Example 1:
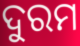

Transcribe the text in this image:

ଦୁରମ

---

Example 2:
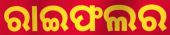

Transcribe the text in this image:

ରାଇଫଲର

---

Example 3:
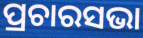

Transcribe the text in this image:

ପ୍ରଚାରସଭା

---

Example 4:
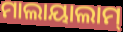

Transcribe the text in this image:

ମାଲାୟାଲାମ୍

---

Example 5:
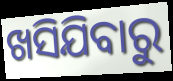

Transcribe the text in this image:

ଖସିଯିବାରୁ